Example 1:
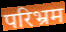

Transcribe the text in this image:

परिभ्रम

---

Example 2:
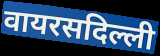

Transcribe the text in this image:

वायरसदिल्ली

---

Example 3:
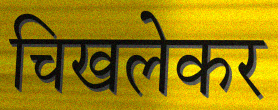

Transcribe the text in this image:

चिखलेकर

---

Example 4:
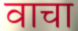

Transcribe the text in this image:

वाचा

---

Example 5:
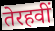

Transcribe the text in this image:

तेरहवीं